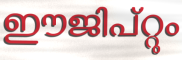
ഈജിപ്റ്റും